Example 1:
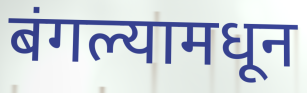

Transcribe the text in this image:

बंगल्यामधून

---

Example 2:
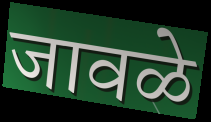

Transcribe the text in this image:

जावळे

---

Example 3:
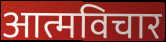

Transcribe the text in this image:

आत्मविचार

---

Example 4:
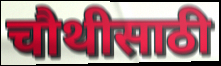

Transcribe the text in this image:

चौथीसाठी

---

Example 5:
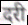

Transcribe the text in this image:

दरी